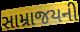
સામ્રાજયની